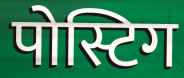
पोस्टिग